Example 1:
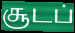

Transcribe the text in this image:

சூடப்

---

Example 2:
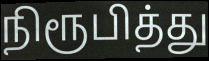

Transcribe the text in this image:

நிரூபித்து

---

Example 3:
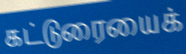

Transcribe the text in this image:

கட்டுரையைக்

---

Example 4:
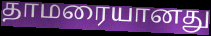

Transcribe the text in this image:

தாமரையானது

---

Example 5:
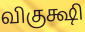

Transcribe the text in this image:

விகுக்ஷி